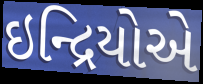
ઇન્દ્રિયોએ